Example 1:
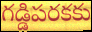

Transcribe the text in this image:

గడ్డిపరకకు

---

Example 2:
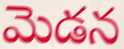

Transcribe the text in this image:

మెడన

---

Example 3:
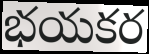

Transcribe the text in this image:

భయకర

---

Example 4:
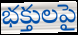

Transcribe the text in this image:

భక్తులపై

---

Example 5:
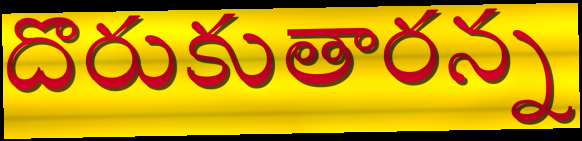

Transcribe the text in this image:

దొరుకుతారన్న